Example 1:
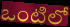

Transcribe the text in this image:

ఒంటిలో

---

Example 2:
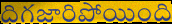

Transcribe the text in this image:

దిగజారిపోయింది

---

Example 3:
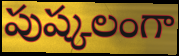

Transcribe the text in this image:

పుష్కలంగా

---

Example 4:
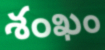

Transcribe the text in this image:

శంఖం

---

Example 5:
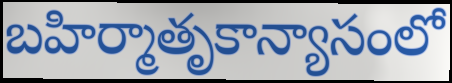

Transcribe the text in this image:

బహిర్మాతృకాన్యాసంలో